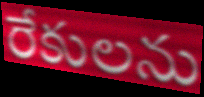
రేకులను